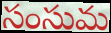
సంసుమ